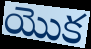
యొక